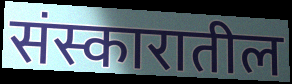
संस्कारातील